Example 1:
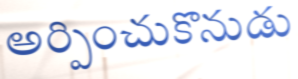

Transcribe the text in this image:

అర్పించుకొనుడు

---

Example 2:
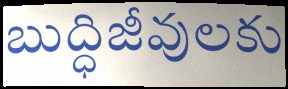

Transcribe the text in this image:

బుద్ధిజీవులకు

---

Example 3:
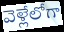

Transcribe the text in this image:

వెళ్లేలోగా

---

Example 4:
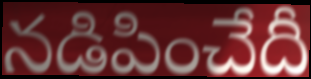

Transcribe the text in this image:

నడిపించేదీ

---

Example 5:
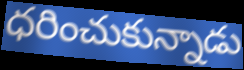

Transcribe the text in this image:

ధరించుకున్నాడు